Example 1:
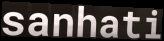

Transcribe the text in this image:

sanhati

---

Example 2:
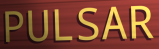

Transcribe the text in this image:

PULSAR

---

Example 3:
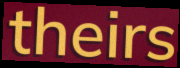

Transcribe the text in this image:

theirs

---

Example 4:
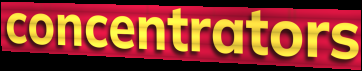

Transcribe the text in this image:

concentrators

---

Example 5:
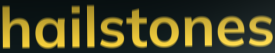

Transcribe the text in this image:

hailstones